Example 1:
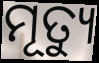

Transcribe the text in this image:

ମୂତ୍ୟୁ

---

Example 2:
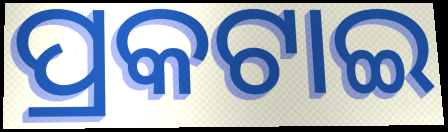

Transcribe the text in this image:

ପ୍ରକଟାଇ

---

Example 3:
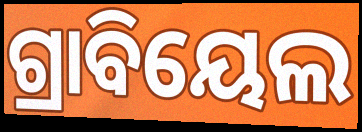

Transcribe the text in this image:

ଗ୍ରାବିୟେଲ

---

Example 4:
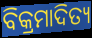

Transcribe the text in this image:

ବିକ୍ରମାଦିତ୍ୟ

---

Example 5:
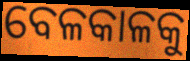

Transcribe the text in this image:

ବେଳକାଳକୁ